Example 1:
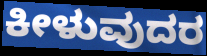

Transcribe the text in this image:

ಕೀಳುವುದರ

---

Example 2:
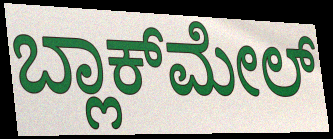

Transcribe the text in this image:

ಬ್ಲಾಕ್‌ಮೇಲ್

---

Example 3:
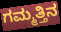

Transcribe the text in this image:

ಗಮ್ಮತ್ತಿನ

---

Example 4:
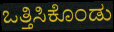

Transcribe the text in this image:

ಒತ್ತಿಸಿಕೊಂಡು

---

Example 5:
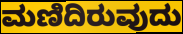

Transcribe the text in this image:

ಮಣಿದಿರುವುದು